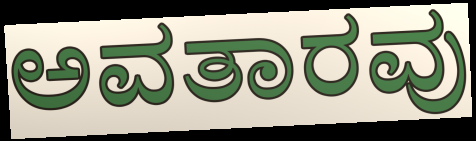
ಅವತಾರವು